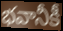
భవానీకీ